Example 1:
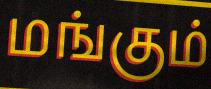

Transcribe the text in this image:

மங்கும்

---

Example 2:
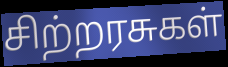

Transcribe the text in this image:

சிற்றரசுகள்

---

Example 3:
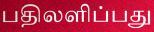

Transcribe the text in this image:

பதிலளிப்பது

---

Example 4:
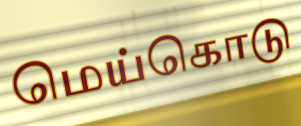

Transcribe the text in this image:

மெய்கொடு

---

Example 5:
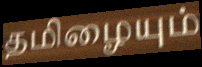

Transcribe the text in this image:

தமிழையும்